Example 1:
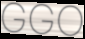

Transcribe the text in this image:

GGO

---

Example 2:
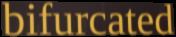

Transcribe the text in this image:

bifurcated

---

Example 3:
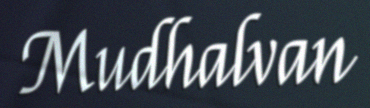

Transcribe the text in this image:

Mudhalvan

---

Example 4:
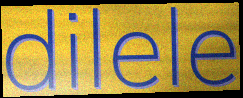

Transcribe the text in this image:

dilele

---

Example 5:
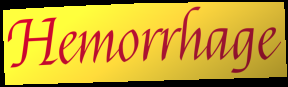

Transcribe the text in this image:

Hemorrhage